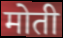
मोती